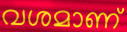
വശമാണ്